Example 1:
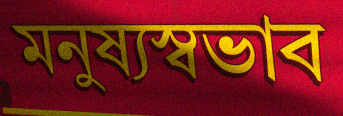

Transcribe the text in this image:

মনুষ্যস্বভাব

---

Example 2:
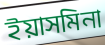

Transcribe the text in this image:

ইয়াসমিনা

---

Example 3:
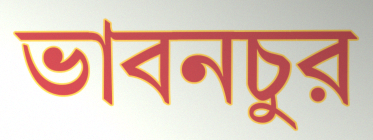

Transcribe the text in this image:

ভাবনচুর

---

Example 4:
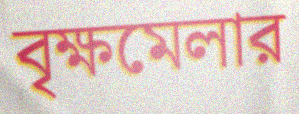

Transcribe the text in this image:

বৃক্ষমেলার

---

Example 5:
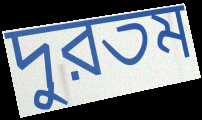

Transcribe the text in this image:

দুরতম